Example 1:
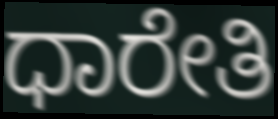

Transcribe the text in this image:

ಧಾರೇತಿ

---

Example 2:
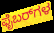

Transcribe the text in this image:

ಫೈಬರ್‌ಗಳ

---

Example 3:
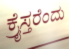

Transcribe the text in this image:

ಕ್ರೈಸ್ತರೆಂದು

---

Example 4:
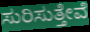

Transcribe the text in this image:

ಸುರಿಸುತ್ತೇವೆ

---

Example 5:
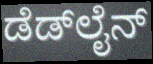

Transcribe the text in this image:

ಡೆಡ್‍ಲೈನ್